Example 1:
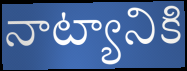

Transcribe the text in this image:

నాట్యానికి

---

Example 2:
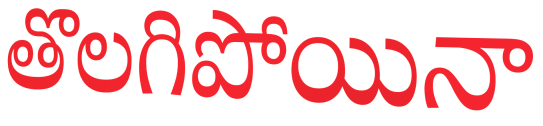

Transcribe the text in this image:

తొలగిపోయినా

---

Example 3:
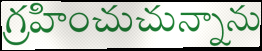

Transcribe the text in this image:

గ్రహించుచున్నాను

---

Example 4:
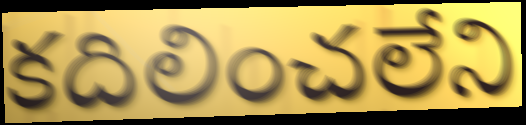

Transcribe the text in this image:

కదిలించలేని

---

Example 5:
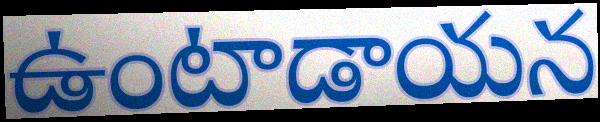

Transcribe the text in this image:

ఉంటాడాయన